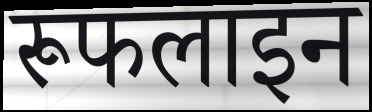
रूफलाइन